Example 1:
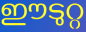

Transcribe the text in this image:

ഈടുറ്റ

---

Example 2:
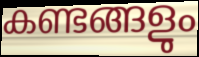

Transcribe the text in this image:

കണ്ടങ്ങളും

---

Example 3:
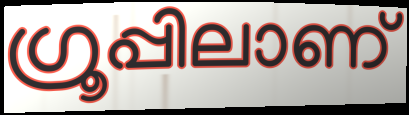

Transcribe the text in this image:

ഗ്രൂപ്പിലാണ്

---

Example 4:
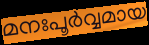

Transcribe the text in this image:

മനഃപൂർവ്വമായ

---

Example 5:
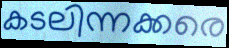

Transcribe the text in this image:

കടലിന്നക്കരെ